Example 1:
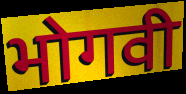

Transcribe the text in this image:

भोगवी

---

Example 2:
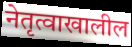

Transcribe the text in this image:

नेतृत्वाखालील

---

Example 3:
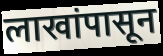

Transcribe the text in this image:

लाखांपासून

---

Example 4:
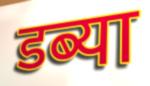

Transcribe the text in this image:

डब्या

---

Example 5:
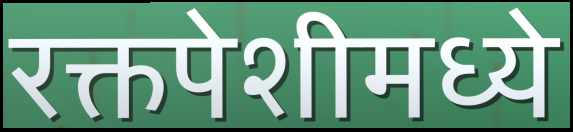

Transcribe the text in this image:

रक्तपेशीमध्ये